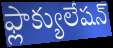
ఫ్లాక్యులేషన్